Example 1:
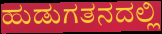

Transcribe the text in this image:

ಹುಡುಗತನದಲ್ಲಿ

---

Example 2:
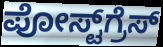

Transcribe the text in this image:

ಪೋಸ್ಟ್‌ಗ್ರೆಸ್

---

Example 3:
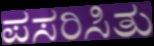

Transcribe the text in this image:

ಪಸರಿಸಿತು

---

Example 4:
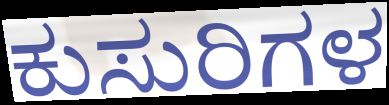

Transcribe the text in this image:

ಕುಸುರಿಗಳ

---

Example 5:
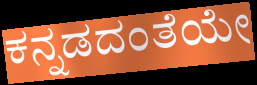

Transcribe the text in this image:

ಕನ್ನಡದಂತೆಯೇ